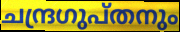
ചന്ദ്രഗുപ്തനും